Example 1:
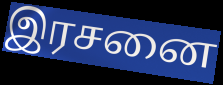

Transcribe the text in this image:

இரசனை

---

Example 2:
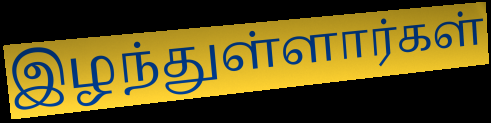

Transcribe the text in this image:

இழந்துள்ளார்கள்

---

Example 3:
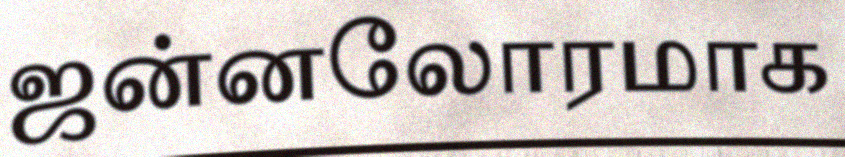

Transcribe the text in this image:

ஜன்னலோரமாக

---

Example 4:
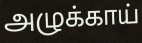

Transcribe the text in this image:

அழுக்காய்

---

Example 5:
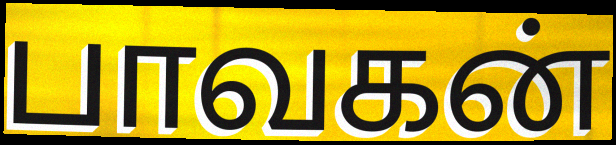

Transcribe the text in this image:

பாவகன்